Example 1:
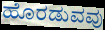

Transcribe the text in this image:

ಹೊರಡುವವು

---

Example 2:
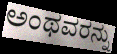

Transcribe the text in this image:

ಅಂಥವರನ್ನು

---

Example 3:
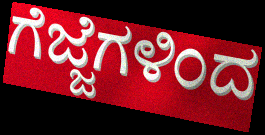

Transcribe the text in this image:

ಗೆಜ್ಜೆಗಳಿಂದ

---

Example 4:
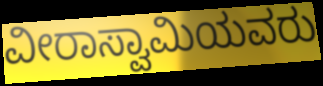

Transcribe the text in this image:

ವೀರಾಸ್ವಾಮಿಯವರು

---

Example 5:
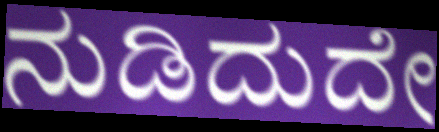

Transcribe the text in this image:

ನುಡಿದುದೇ